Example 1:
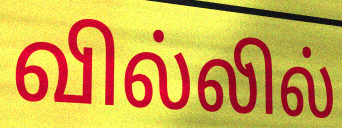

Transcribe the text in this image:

வில்லில்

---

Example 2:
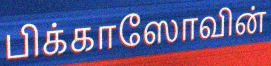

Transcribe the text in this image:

பிக்காஸோவின்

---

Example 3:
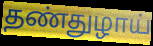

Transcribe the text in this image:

தண்துழாய்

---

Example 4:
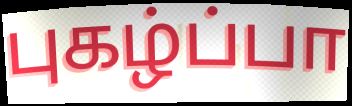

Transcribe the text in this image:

புகழ்ப்பா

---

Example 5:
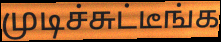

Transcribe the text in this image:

முடிச்சுட்டீங்க